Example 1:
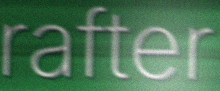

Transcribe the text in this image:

rafter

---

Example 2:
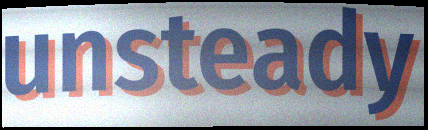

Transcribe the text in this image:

unsteady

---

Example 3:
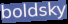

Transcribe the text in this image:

boldsky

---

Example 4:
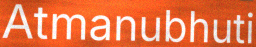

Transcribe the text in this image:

Atmanubhuti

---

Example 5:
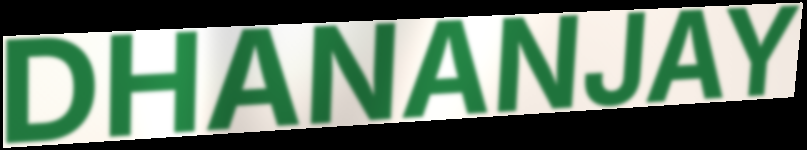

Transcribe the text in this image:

DHANANJAY